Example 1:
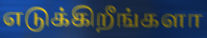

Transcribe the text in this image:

எடுக்கிறீங்களா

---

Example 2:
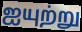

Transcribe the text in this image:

ஐயுற்று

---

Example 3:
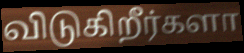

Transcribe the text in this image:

விடுகிறீர்களா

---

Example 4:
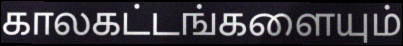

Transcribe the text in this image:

காலகட்டங்களையும்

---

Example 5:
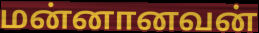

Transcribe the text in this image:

மன்னானவன்